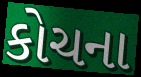
કોચના